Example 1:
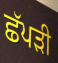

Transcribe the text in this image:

ਛੱਪੜੀ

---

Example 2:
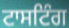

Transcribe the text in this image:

ਟਾਸਟਿੰਗ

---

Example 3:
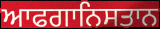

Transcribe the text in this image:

ਆਫਗਾਨਿਸਤਾਨ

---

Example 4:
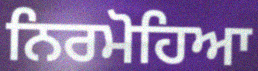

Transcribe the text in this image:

ਨਿਰਮੋਹਿਆ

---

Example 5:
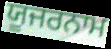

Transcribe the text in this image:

ਯੂਜਰਨਾਮ